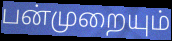
பன்முறையும்